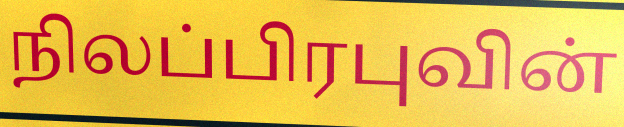
நிலப்பிரபுவின்